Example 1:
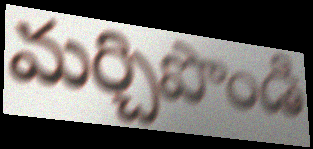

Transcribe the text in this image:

మర్చిపొండి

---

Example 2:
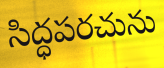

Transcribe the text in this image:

సిద్ధపరచును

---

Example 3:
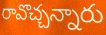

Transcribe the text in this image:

రావొచ్చన్నారు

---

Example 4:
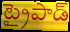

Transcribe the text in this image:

ట్రైపాడ్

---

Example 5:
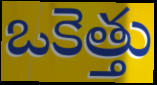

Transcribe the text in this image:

ఒకెత్తు